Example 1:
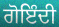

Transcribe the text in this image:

ਗੋਇੰਦੀ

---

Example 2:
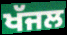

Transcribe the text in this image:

ਖੱਜਲ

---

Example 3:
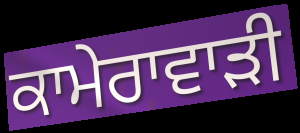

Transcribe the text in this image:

ਕਾਮੇਰਾਵਾੜੀ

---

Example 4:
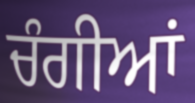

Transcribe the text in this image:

ਚੰਗੀਆਂ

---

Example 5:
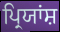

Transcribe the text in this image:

ਪ੍ਰਿਯਾਂਸ਼